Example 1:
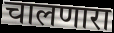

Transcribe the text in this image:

चालणारा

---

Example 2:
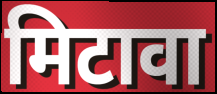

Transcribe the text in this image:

मिटावा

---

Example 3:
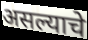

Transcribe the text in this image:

असल्याचे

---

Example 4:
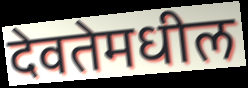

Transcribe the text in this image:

देवतेमधील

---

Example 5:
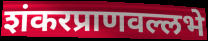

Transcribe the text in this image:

शंकरप्राणवल्लभे